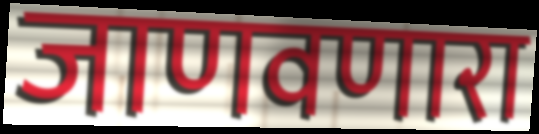
जाणवणारा